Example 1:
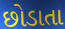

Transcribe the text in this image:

છોડાતા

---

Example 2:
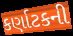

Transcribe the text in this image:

કર્ણાટકની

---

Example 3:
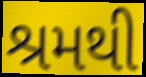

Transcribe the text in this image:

શ્રમથી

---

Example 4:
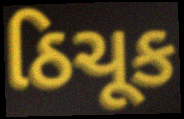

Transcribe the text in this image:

ઠિચૂક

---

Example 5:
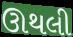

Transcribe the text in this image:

ઊથલી